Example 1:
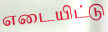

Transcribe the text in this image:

எடையிட்டு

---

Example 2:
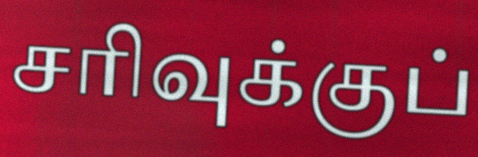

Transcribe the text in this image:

சரிவுக்குப்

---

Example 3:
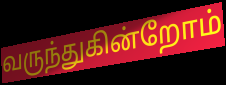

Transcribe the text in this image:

வருந்துகின்றோம்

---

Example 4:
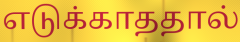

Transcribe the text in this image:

எடுக்காததால்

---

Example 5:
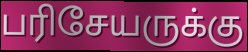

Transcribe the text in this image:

பரிசேயருக்கு